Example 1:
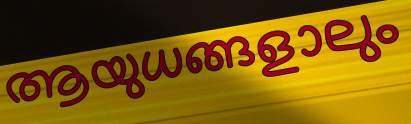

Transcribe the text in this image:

ആയുധങ്ങളാലും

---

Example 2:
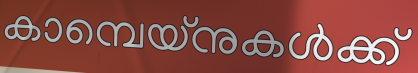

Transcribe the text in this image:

കാമ്പെയ്നുകൾക്ക്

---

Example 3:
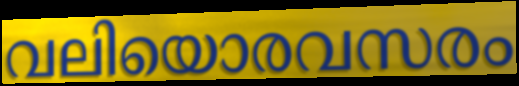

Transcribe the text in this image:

വലിയൊരവസരം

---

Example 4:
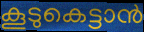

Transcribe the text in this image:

കൂടുകെട്ടാൻ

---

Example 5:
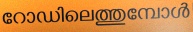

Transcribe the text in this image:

റോഡിലെത്തുമ്പോൾ